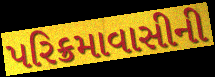
પરિક્રમાવાસીની